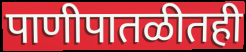
पाणीपातळीतही